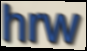
hrw